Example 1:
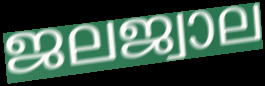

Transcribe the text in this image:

ജലജ്വാല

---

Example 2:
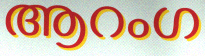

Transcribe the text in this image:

ആറംഗ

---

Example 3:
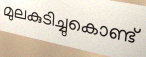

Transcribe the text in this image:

മുലകുടിച്ചുകൊണ്ട്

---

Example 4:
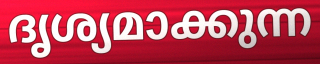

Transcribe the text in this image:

ദൃശ്യമാക്കുന്ന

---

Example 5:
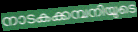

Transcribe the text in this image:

നാടകക്കമ്പനിയുടെ